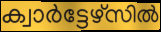
ക്വാർട്ടേഴ്സിൽ